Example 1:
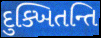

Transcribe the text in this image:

દુક્ખિતન્તિ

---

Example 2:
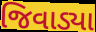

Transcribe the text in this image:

જિવાડ્યા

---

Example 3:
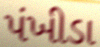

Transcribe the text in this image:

પંખીડા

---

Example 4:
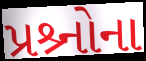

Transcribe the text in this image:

પ્રશ્ર્નોના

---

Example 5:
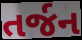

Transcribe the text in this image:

તર્જન